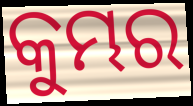
କୁମ୍ଭର